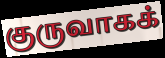
குருவாகக்